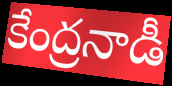
కేంద్రనాడీ